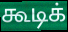
கூடிக்